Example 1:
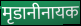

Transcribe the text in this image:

मृडानीनायक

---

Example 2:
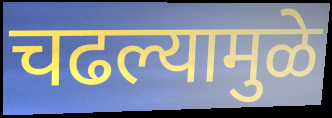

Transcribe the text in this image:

चढल्यामुळे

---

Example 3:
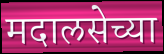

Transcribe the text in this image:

मदालसेच्या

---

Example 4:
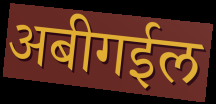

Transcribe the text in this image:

अबीगईल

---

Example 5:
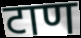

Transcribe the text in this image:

टाण